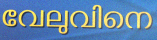
വേലുവിനെ